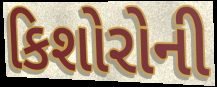
કિશોરોની